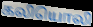
கலியொலி